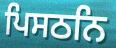
ਪਿਸਠਨਿ